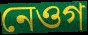
নেওগ